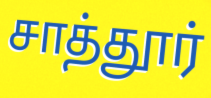
சாத்தூர்